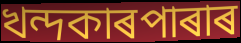
খন্দকাৰপাৰাৰ